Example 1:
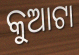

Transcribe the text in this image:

କୁଆଟା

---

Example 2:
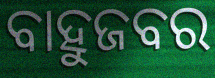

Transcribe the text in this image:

ବାହୁଜବର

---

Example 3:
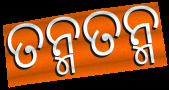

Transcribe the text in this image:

ତନ୍ମତନ୍ମ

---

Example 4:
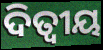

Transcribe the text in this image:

ଦିତ୍ୱୀୟ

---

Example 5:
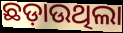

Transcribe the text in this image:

ଛଡ଼ାଉଥିଲା